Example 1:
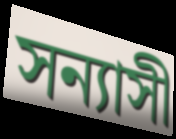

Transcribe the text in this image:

সন্যাসী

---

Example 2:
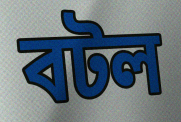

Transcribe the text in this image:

বটল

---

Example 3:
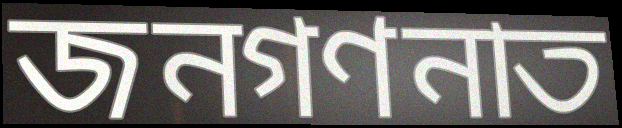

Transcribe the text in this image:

জনগণনাত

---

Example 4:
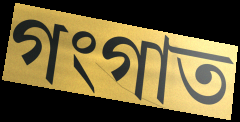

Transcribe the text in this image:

গংগাত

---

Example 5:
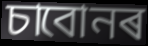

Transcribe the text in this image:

চাবোনৰ